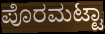
ಪೊರಮಟ್ಟಾ